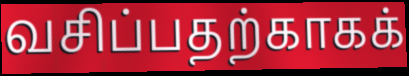
வசிப்பதற்காகக்